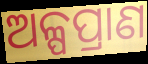
ଅଳ୍ପପ୍ରାଣ